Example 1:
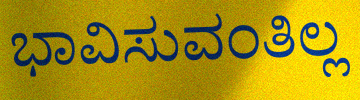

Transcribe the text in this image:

ಭಾವಿಸುವಂತಿಲ್ಲ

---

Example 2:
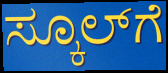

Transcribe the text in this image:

ಸ್ಕೂಲ್‌ಗೆ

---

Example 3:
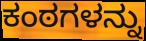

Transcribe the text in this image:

ಕಂಠಗಳನ್ನು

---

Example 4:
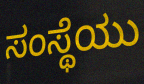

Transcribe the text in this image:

ಸಂಸ್ಥೆಯು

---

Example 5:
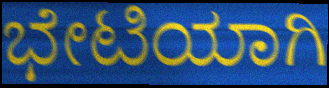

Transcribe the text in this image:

ಭೇಟಿಯಾಗಿ